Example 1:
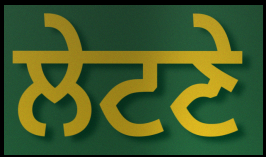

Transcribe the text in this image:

ਲੇਟਣੇ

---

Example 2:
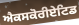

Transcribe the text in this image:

ਐਕਸਕੋਰੀਏਟਿਡ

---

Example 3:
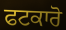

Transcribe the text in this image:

ਫਟਕਾਰੋ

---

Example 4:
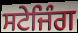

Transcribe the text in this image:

ਸਟੇਜਿੰਗ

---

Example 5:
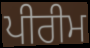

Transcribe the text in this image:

ਪੀਰੀਮ